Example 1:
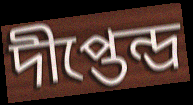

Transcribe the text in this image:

দীপ্তেন্দ্র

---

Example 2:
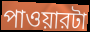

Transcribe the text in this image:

পাওয়ারটা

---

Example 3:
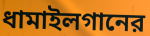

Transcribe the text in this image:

ধামাইলগানের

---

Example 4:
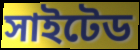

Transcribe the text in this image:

সাইটেড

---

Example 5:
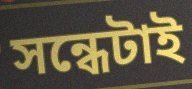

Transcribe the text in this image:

সন্ধেটাই